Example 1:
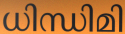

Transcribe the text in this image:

ധിന്ധിമി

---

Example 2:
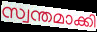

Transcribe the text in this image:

സ്വന്തമാക്കി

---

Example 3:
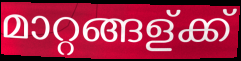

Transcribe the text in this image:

മാറ്റങ്ങള്ക്ക്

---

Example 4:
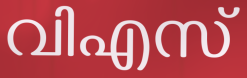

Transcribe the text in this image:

വിഎസ്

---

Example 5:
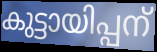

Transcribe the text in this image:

കുട്ടായിപ്പന്